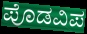
ಪೊಡವಿಪ